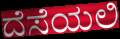
ದೆಸೆಯಲಿ